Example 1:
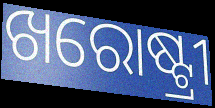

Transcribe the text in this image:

ଖରୋଷ୍ଟ୍ରୀ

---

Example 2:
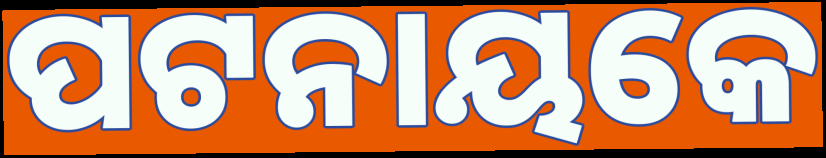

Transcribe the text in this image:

ପଟନାୟକେ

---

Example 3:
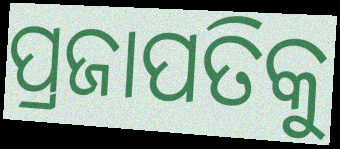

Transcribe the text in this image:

ପ୍ରଜାପତିକୁ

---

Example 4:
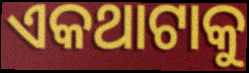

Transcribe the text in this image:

ଏକଥାଟାକୁ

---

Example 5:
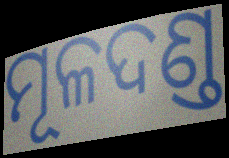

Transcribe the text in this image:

ମୂଳଦଣ୍ଡ